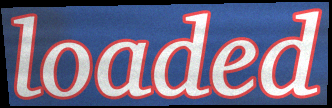
loaded